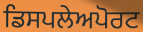
ਡਿਸਪਲੇਅਪੋਰਟ